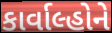
કાર્વાલ્હોને